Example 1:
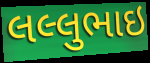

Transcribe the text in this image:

લલ્લુભાઇ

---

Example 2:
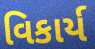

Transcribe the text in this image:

વિકાર્ય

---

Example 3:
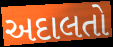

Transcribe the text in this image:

અદાલતો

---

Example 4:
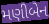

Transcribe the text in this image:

મણીબેન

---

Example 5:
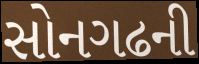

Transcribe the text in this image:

સોનગઢની